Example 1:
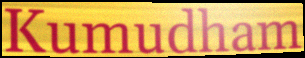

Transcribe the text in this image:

Kumudham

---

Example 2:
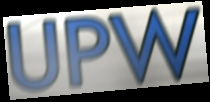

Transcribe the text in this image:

UPW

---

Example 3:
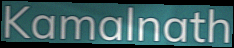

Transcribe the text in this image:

Kamalnath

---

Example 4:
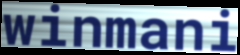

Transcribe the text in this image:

winmani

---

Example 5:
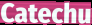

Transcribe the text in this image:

Catechu